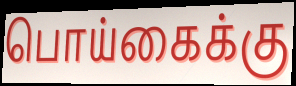
பொய்கைக்கு